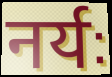
नर्यः